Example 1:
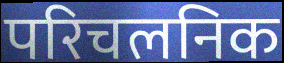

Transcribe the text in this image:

परिचलनिक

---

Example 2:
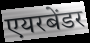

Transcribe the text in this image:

एयरबेंडर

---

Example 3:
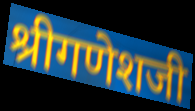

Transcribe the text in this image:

श्रीगणेशजी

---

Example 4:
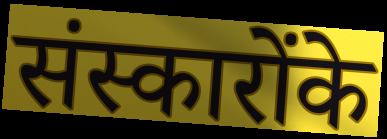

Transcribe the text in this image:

संस्कारोंके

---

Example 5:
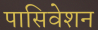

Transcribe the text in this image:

पासिवेशन